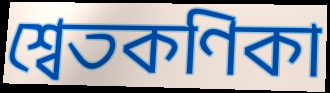
শ্বেতকণিকা